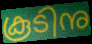
കൂടിനു